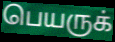
பெயருக்